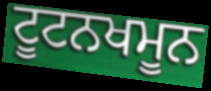
ਟੂਟਨਖਮੂਨ